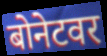
बोनेटवर